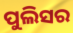
ପୁଲିସର